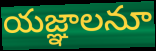
యజ్ఞాలనూ